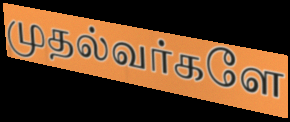
முதல்வர்களே